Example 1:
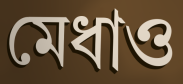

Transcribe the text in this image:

মেধাও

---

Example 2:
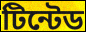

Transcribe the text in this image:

টিন্টেড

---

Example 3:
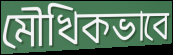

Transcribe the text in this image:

মৌখিকভাবে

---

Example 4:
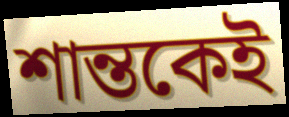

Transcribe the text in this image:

শান্তকেই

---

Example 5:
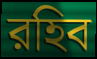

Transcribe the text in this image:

রহিব